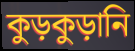
কুড়কুড়ানি